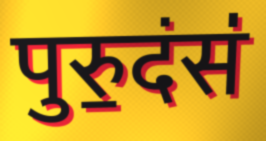
पुरु॒दंसं॑